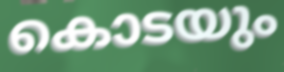
കൊടയും